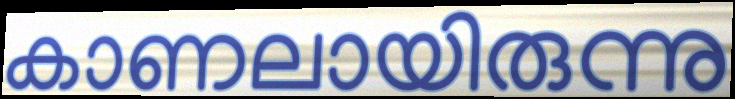
കാണലായിരുന്നു